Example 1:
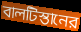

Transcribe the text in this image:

বালটিস্তানের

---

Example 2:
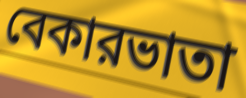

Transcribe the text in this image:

বেকারভাতা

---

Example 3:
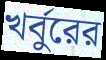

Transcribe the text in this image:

খর্বুরের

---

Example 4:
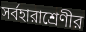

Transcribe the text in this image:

সর্বহারাশ্রেণীর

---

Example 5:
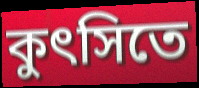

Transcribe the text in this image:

কুৎসিতে